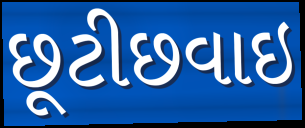
છૂટીછવાઇ